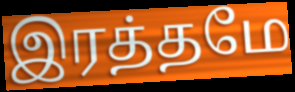
இரத்தமே